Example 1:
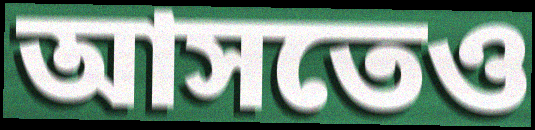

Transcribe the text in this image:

আসতেও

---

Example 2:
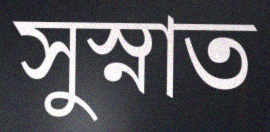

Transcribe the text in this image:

সুস্নাত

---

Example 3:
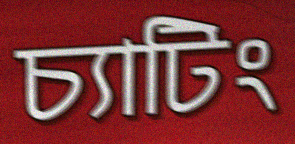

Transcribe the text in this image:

চ্যাটিং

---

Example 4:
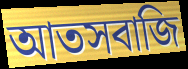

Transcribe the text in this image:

আতসবাজি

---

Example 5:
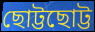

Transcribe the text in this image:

ছোট্টছোট্ট